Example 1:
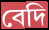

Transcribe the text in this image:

বেদি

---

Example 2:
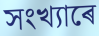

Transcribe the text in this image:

সংখ্যাৰে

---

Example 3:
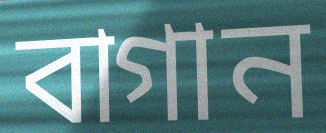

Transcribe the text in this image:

বাগান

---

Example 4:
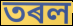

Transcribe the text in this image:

তৰল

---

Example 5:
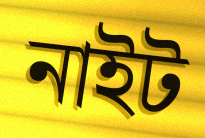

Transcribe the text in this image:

নাইট